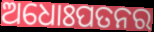
ଅଧୋଃପତନର